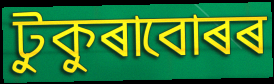
টুকুৰাবোৰৰ